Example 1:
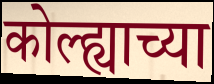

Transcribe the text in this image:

कोल्ह्याच्या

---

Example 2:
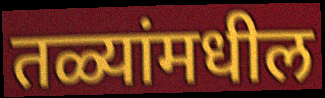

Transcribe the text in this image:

तळ्यांमधील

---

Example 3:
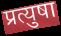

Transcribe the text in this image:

प्रत्युषा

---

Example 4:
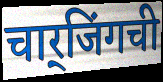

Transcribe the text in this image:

चार्जिंगची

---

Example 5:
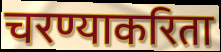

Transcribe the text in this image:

चरण्याकरिता